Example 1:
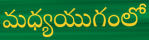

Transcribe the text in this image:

మధ్యయుగంలో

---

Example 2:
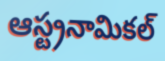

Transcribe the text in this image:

ఆస్ట్రనామికల్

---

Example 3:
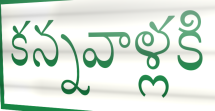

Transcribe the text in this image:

కన్నవాళ్లకి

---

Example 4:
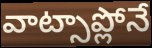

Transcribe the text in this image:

వాట్సాప్లోనే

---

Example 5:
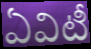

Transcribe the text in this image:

ఏవిటీ